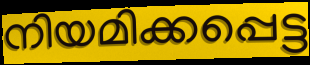
നിയമിക്കപ്പെട്ട